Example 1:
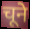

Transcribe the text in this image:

चूने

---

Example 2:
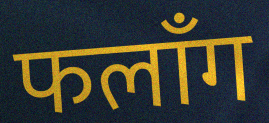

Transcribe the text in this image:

फलाँग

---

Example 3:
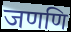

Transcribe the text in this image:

जणणि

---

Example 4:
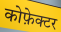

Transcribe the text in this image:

कोफ़ेक्टर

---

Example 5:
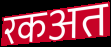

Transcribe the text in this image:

रकअत